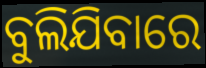
ବୁଲିଯିବାରେ